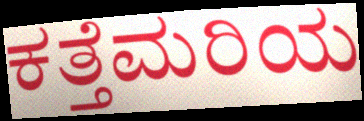
ಕತ್ತೆಮರಿಯ